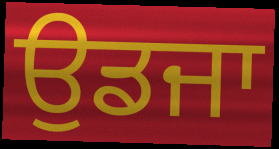
ਉਡਜਾ